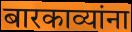
बारकाव्यांना